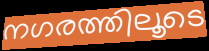
നഗരത്തിലൂടെ